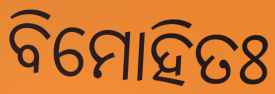
ବିମୋହିତଃ